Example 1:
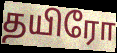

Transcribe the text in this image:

தயிரோ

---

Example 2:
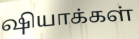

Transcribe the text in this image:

ஷியாக்கள்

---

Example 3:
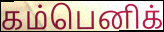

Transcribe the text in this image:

கம்பெனிக்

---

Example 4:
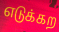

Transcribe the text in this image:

எடுக்கற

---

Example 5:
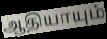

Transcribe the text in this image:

ஆதியாயும்